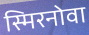
स्मिरनोवा